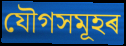
যৌগসমূহৰ